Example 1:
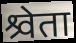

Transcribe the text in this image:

श्र्वेता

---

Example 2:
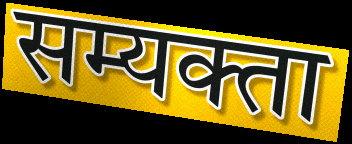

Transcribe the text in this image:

सम्यक्ता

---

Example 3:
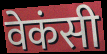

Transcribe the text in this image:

वेकंसी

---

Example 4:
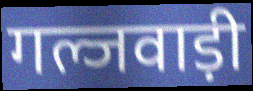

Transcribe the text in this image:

गल्जवाड़ी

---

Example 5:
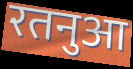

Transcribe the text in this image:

रतनुआ